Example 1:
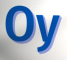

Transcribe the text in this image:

Oy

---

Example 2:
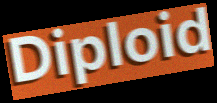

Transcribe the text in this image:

Diploid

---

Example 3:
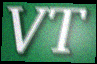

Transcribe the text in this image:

VT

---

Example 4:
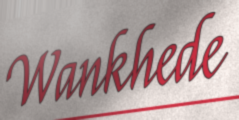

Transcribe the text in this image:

Wankhede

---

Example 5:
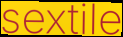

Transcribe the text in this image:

sextile